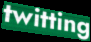
twitting